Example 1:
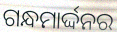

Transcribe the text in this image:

ଗନ୍ଧମାର୍ଦ୍ଦନର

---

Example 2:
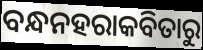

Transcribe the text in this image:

ବନ୍ଧନହରାକବିତାରୁ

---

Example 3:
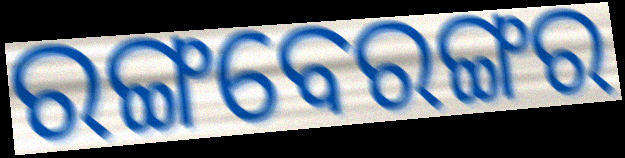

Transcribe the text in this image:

ରଙ୍ଗବେରଙ୍ଗର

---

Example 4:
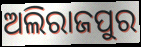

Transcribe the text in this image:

ଅଲିରାଜପୁର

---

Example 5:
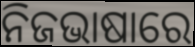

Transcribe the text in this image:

ନିଜଭାଷାରେ